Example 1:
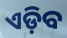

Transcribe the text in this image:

ଏଡ଼ିବ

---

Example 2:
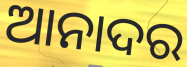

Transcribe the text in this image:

ଆନାଦର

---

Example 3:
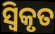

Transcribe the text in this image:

ସ୍ଵିକୃତ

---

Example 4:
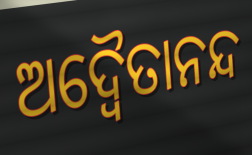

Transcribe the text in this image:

ଅଦ୍ଵୈତାନନ୍ଦ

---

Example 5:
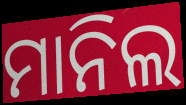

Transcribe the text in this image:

ମାନିଲ